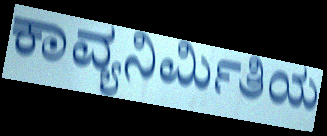
ಕಾವ್ಯನಿರ್ಮಿತಿಯ